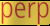
perp